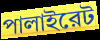
পালাইরেট